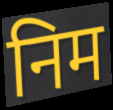
निम